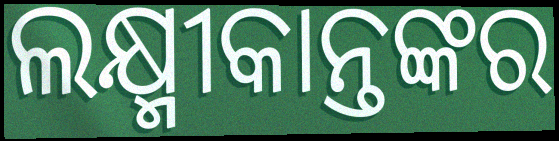
ଲକ୍ଷ୍ମୀକାନ୍ତଙ୍କର